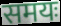
समयः